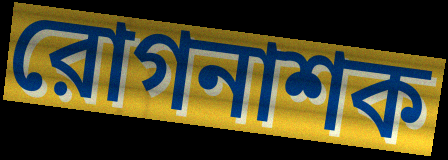
রোগনাশক